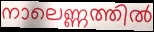
നാലെണ്ണത്തിൽ